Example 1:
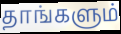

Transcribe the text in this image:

தாங்களும்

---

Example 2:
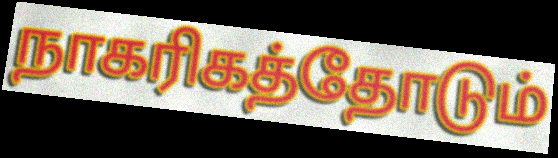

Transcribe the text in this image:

நாகரிகத்தோடும்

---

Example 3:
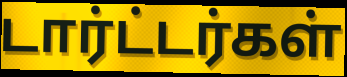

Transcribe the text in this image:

டார்ட்டர்கள்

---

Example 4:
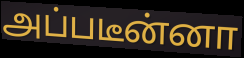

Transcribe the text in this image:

அப்படீன்னா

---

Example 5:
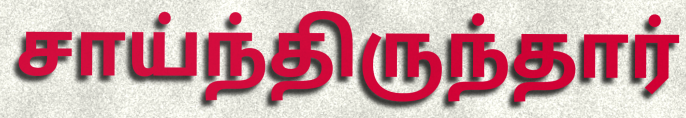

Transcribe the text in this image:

சாய்ந்திருந்தார்